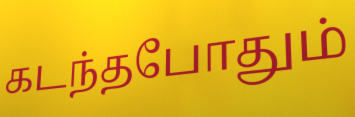
கடந்தபோதும்